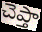
చెప్తా